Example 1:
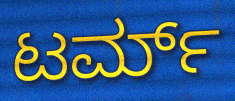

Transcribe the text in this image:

ಟರ್ಮ್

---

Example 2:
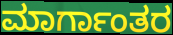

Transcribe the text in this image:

ಮಾರ್ಗಾಂತರ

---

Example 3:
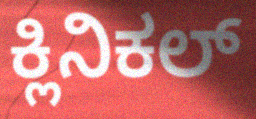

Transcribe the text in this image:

ಕ್ಲಿನಿಕಲ್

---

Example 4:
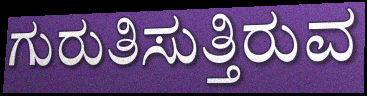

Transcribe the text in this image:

ಗುರುತಿಸುತ್ತಿರುವ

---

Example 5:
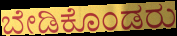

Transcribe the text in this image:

ಬೇಡಿಕೊಂಡರು